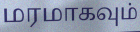
மரமாகவும்